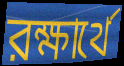
রক্ষার্থে